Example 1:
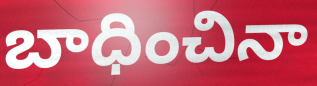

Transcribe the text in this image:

బాధించినా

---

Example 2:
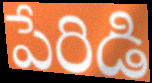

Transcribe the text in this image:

పేరిడి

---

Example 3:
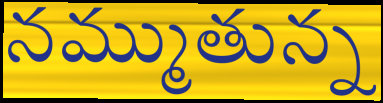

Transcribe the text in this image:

నమ్ముతున్న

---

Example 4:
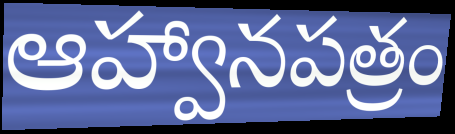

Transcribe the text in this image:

ఆహ్వానపత్రం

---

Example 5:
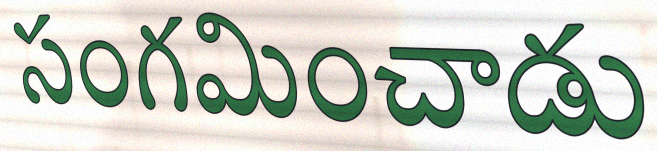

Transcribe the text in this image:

సంగమించాడు